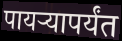
पायऱ्यापर्यंत